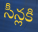
సీన్లకి